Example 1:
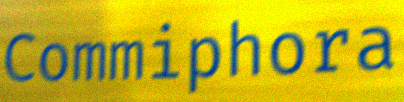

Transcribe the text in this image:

Commiphora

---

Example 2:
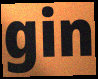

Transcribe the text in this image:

gin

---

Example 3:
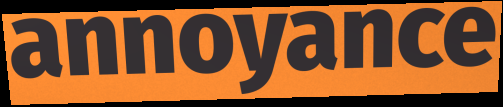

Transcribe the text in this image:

annoyance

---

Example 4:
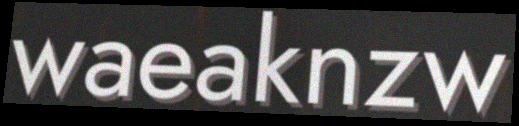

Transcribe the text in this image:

waeaknzw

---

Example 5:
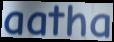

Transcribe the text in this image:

aatha